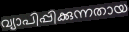
വ്യാപിപ്പിക്കുന്നതായ